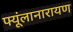
फ्यूंलानारायण